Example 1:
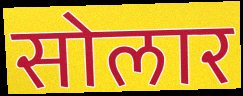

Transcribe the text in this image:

सोलार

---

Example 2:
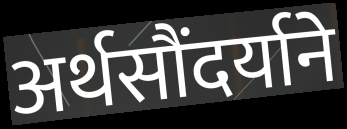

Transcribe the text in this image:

अर्थसौंदर्याने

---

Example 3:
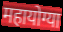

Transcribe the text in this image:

महायोग्या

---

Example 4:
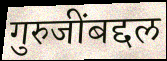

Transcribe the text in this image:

गुरुजींबद्दल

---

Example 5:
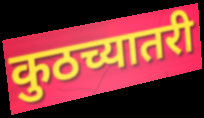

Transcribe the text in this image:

कुठच्यातरी